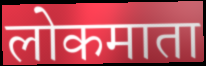
लोकमाता